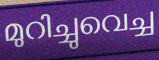
മുറിച്ചുവെച്ച